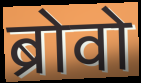
ब्रोवो